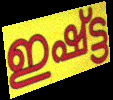
ഇഷ്ട്ട